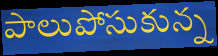
పాలుపోసుకున్న